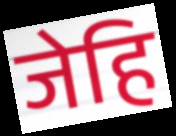
जेहि